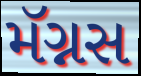
મૅગ્નસ